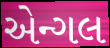
એન્ગલ